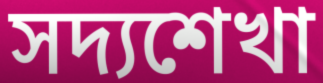
সদ্যশেখা